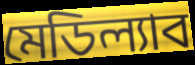
মেডিল্যাব